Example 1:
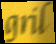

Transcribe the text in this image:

gril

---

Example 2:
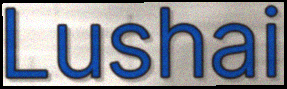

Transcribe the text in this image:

Lushai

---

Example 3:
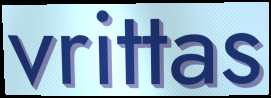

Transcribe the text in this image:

vrittas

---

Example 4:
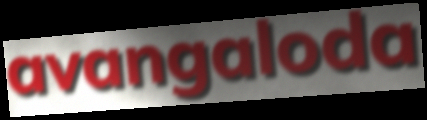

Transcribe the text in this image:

avangaloda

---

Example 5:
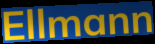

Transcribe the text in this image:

Ellmann